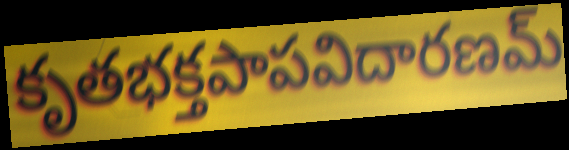
కృతభక్తపాపవిదారణమ్